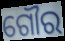
ଗୌର